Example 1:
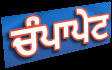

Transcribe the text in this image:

ਚੰਪਾਪੇਟ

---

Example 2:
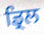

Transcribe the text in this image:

ਡ੍ਰਿਲ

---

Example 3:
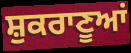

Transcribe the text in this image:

ਸ਼ੁਕਰਾਣੂਆਂ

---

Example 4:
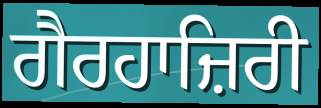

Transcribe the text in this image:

ਗੈਰਹਾਜ਼ਿਰੀ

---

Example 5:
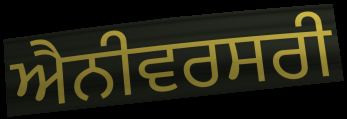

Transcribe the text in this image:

ਐਨੀਵਰਸਰੀ